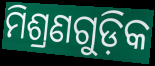
ମିଶ୍ରଣଗୁଡ଼ିକ